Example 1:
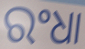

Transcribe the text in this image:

ରଂଧା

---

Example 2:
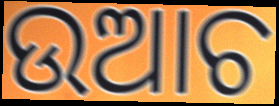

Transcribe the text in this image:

ଉଆଚ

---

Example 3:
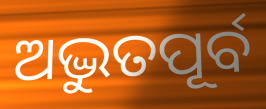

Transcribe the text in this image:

ଅଦ୍ଭୁତପୂର୍ବ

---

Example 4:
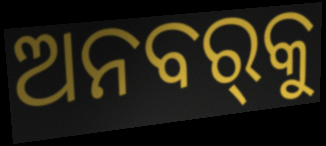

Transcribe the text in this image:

ଅନବର୍‌କୁ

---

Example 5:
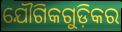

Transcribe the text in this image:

ଯୌଗିକଗୁଡ଼ିକର